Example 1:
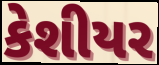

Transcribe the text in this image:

કેશીયર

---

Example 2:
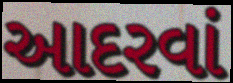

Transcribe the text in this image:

આદરવાં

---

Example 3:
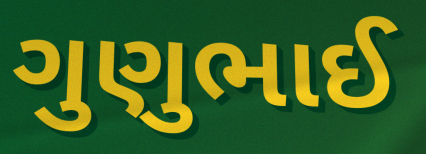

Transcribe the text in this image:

ગુણુભાઈ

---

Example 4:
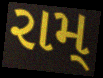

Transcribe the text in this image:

રામ્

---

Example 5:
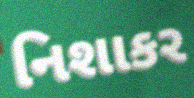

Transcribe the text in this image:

નિશાકર